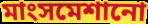
মাংসমেশানো